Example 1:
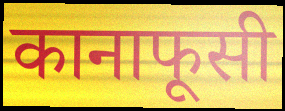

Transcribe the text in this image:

कानाफूसी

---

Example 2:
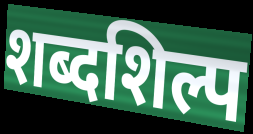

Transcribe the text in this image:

शब्दशिल्प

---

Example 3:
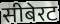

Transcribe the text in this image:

सीबेरट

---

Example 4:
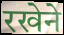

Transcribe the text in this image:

रखेने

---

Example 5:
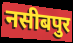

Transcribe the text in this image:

नसीबपुर